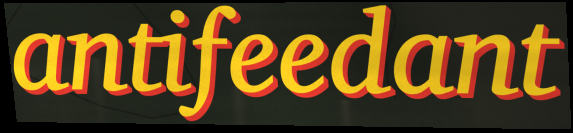
antifeedant